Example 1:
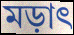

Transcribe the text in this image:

মড়াৎ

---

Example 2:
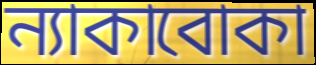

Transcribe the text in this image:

ন্যাকাবোকা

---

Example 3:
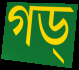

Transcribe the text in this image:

গড্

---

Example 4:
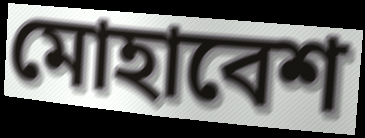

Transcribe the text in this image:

মোহাবেশ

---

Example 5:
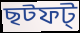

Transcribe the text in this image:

ছট্ফট্